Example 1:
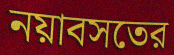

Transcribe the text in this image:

নয়াবসতের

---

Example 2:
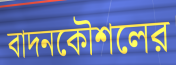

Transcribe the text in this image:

বাদনকৌশলের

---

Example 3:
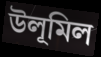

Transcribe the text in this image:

উলূমিল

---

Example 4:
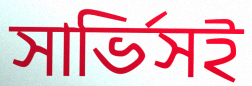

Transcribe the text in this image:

সার্ভিসই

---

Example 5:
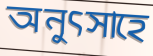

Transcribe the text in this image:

অনুৎসাহে